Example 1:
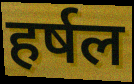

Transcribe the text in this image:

हर्षल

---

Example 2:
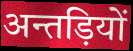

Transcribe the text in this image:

अन्तड़ियों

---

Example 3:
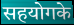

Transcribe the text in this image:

सहयोगके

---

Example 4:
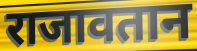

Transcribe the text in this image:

राजावतान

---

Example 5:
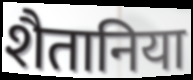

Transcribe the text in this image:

शैतानिया